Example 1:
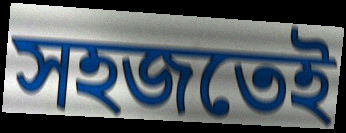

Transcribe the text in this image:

সহজতেই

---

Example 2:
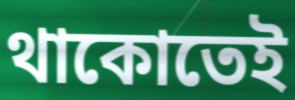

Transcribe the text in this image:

থাকোতেই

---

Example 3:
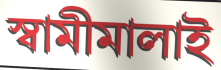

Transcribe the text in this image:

স্বামীমালাই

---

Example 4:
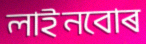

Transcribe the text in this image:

লাইনবোৰ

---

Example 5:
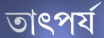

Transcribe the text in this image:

তাৎপৰ্য